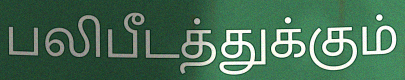
பலிபீடத்துக்கும்